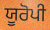
ਯੂਰੋਪੀ